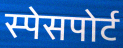
स्पेसपोर्ट